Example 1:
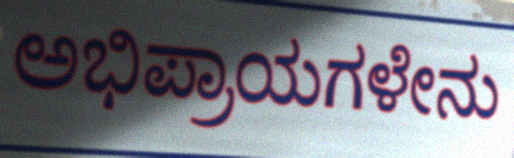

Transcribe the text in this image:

ಅಭಿಪ್ರಾಯಗಳೇನು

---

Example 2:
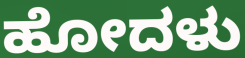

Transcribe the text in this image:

ಹೋದಳು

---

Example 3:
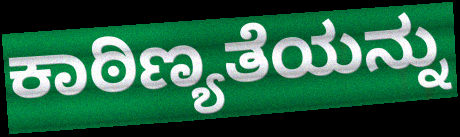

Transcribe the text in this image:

ಕಾಠಿಣ್ಯತೆಯನ್ನು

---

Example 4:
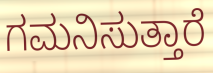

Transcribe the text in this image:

ಗಮನಿಸುತ್ತಾರೆ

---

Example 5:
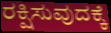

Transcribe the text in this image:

ರಕ್ಷಿಸುವುದಕ್ಕೆ